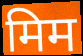
मिम